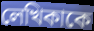
লেখিকাকে